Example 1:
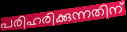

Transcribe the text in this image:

പരിഹരിക്കുന്നതിന്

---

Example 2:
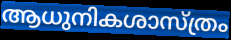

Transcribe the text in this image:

ആധുനികശാസ്ത്രം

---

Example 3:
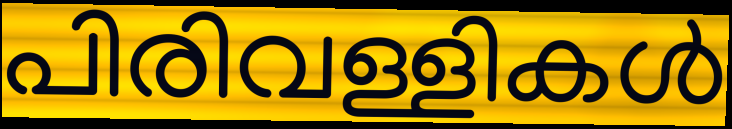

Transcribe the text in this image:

പിരിവള്ളികൾ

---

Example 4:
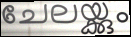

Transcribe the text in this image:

ചേലയ്ക്കും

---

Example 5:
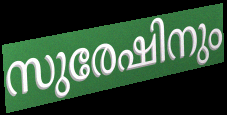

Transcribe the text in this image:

സുരേഷിനും